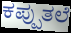
ಕಪ್ಪುತಲೆ